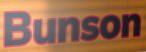
Bunson